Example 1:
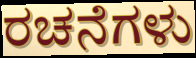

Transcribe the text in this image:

ರಚನೆಗಳು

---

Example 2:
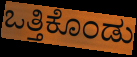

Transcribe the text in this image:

ಒತ್ತಿಕೊಂಡು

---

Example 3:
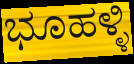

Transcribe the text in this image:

ಭೂಹಳ್ಳಿ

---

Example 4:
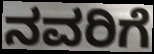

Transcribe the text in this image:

ನವರಿಗೆ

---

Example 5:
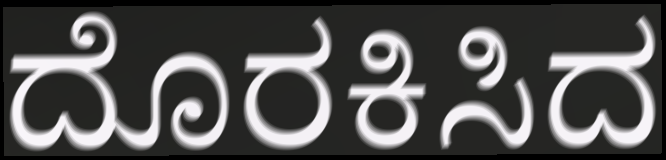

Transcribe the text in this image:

ದೊರಕಿಸಿದ